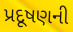
પ્રદૂષણની